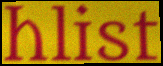
hlist